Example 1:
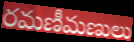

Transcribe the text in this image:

రమణీమణులు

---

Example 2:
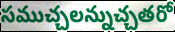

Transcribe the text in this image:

సముచ్చలన్నుచ్చతరో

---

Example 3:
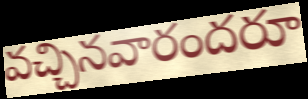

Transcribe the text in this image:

వచ్చినవారందరూ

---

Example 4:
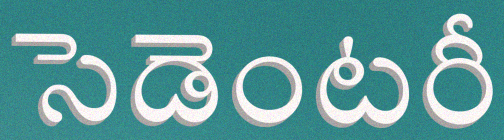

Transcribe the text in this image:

సెడెంటరీ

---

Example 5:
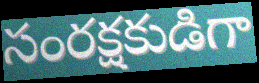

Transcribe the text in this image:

సంరక్షకుడిగా